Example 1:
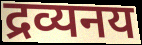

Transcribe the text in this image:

द्रव्यनय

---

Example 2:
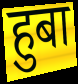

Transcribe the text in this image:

हुबा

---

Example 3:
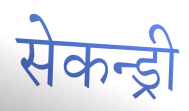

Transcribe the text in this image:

सेकन्ड्री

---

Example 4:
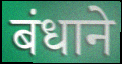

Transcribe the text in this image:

बंधाने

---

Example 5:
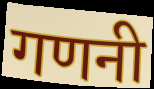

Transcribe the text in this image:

गणनी